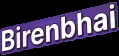
Birenbhai